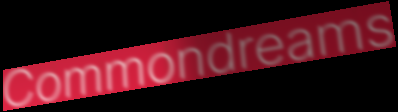
Commondreams